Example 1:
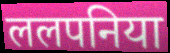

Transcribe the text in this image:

ललपनिया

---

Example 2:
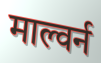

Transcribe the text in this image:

माल्वर्न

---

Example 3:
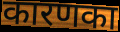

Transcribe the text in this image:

कारणका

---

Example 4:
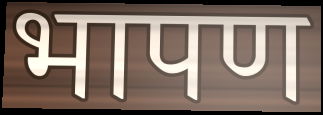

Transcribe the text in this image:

भापण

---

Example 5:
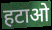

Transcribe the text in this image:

हटाओ